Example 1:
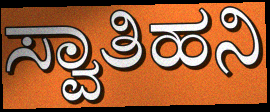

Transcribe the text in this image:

ಸ್ವಾತಿಹನಿ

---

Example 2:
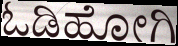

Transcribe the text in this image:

ಓಡಿಹೋಗಿ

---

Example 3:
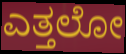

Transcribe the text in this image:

ಎತ್ತಲೋ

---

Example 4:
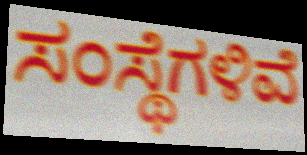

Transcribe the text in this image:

ಸಂಸ್ಥೆಗಳಿವೆ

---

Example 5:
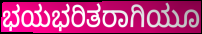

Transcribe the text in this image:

ಭಯಭರಿತರಾಗಿಯೂ